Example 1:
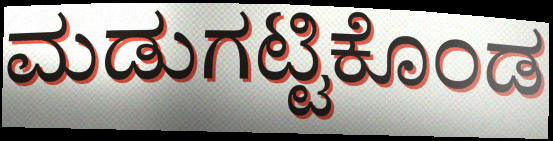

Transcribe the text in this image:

ಮಡುಗಟ್ಟಿಕೊಂಡ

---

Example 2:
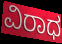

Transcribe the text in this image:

ವಿರಾಧ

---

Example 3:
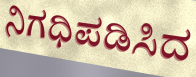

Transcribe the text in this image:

ನಿಗಧಿಪಡಿಸಿದ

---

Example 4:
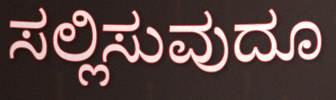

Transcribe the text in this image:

ಸಲ್ಲಿಸುವುದೂ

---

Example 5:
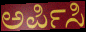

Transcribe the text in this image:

ಅರ್ಪಿಸಿ